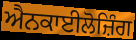
ਐਨਕਾਈਲੋਜ਼ਿੰਗ